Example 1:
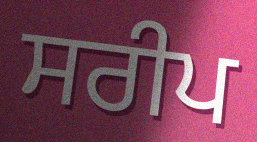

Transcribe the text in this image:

ਸਰੀਪ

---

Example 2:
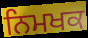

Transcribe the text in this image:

ਨਿਮਖਕ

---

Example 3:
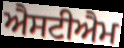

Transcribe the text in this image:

ਐਸਟੀਐਮ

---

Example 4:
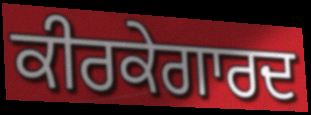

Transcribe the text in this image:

ਕੀਰਕੇਗਾਰਦ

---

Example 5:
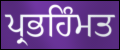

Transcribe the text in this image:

ਪ੍ਰਭਹਿੰਮਤ